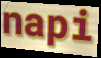
napi